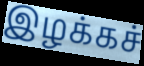
இழக்கச்